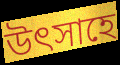
উত্‍সাহে